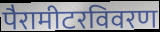
पैरामीटरविवरण